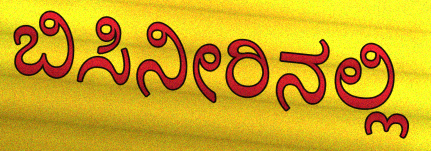
ಬಿಸಿನೀರಿನಲ್ಲಿ